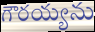
గౌరయ్యను